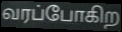
வரப்போகிற